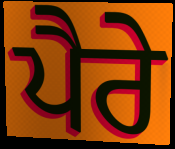
ਪੈਰੇ